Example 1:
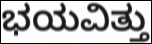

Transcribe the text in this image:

ಭಯವಿತ್ತು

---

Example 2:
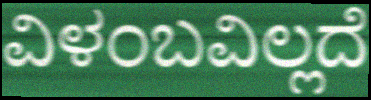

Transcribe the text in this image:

ವಿಳಂಬವಿಲ್ಲದೆ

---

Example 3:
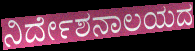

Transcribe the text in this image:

ನಿರ್ದೇಶನಾಲಯದ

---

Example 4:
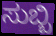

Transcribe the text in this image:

ಸುಬ್ಬಿ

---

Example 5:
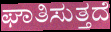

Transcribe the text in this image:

ಘಾತಿಸುತ್ತದೆ